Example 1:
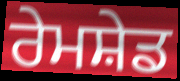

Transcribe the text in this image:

ਰੇਮਸ਼ੇਡ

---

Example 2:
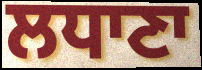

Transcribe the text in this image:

ਲਧਾਣਾ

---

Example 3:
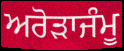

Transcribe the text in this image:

ਅਰੋੜਾਜੰਮੂ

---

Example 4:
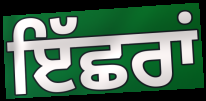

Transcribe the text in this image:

ਇੱਛਰਾਂ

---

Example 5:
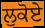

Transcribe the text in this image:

ਲੁਕੋਏ